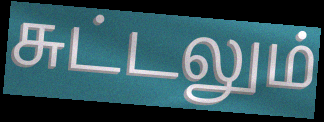
சுட்டலும்